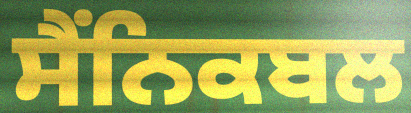
ਸੈੰਨਿਕਬਲ